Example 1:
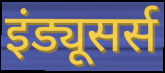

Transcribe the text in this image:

इंड्यूसर्स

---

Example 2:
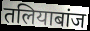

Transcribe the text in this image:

तलियाबांज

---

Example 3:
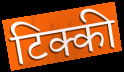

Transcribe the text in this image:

टिक्‍की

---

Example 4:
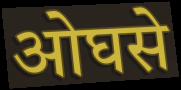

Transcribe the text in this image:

ओघसे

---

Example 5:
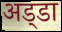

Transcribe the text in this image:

अड्‍डा